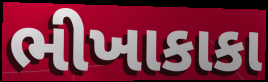
ભીખાકાકા